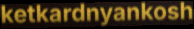
ketkardnyankosh